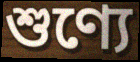
শুণ্যে